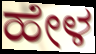
ಹೇಳ